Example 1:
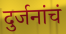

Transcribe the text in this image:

दुर्जनांचं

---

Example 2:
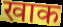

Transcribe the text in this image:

खाक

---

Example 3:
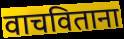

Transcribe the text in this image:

वाचविताना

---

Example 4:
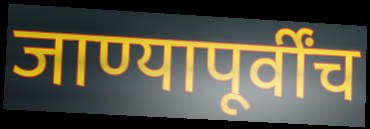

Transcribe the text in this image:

जाण्यापूर्वींच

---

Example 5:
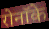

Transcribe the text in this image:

रोनॉके